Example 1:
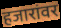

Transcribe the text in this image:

हजारांवर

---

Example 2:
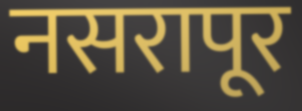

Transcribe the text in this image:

नसरापूर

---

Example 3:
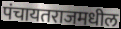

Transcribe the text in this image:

पंचायतराजमधील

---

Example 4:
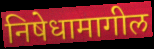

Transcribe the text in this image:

निषेधामागील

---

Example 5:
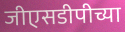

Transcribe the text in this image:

जीएसडीपीच्या